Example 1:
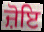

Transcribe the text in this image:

ਜ਼ੋਇ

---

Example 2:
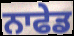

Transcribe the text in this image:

ਨਾਫੇਡ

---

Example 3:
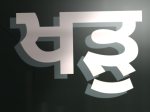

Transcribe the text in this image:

ਖੜੁ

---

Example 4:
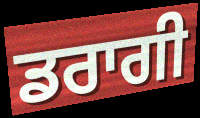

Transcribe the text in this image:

ਡਰਾਗੀ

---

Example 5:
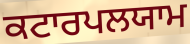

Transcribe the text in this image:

ਕਟਾਰਪਲਯਾਮ